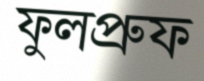
ফুলপ্রুফ